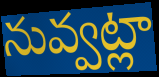
నువ్వట్లా